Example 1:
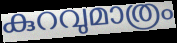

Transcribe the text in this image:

കുറവുമാത്രം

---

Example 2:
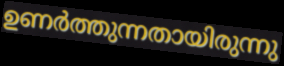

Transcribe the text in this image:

ഉണർത്തുന്നതായിരുന്നു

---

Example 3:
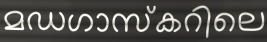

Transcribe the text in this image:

മഡഗാസ്കറിലെ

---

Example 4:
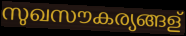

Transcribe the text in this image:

സുഖസൗകര്യങ്ങള്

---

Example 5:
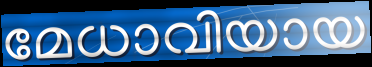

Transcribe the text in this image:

മേധാവിയായ